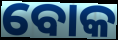
ବୋକ